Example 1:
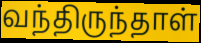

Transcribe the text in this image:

வந்திருந்தாள்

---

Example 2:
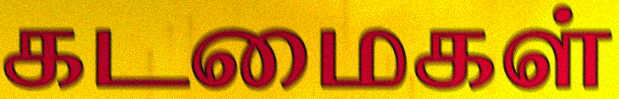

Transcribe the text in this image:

கடமைகள்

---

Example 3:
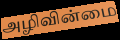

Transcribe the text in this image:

அழிவின்மை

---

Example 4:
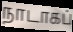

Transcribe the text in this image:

நாடாகப்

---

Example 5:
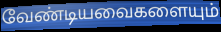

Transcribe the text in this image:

வேண்டியவைகளையும்